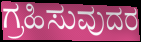
ಗ್ರಹಿಸುವುದರ